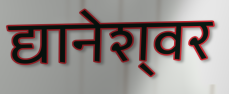
द्यानेश्वर